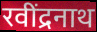
रवींद्रनाथ